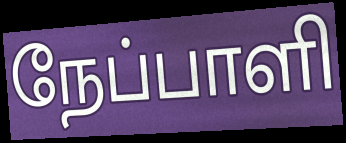
நேப்பாளி